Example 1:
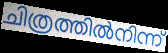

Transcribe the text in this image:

ചിത്രത്തിൽനിന്ന്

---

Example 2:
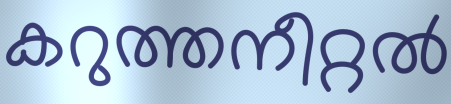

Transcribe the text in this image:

കറുത്തനീറ്റൽ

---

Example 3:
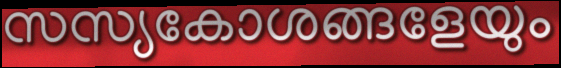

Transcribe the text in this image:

സസ്യകോശങ്ങളേയും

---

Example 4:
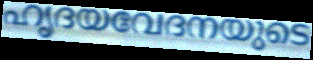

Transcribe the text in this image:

ഹൃദയവേദനയുടെ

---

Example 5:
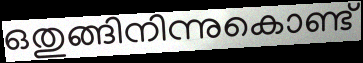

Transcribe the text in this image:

ഒതുങ്ങിനിന്നുകൊണ്ട്